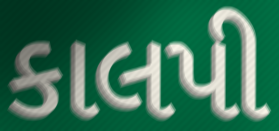
કાલપી